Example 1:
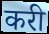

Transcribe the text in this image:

करी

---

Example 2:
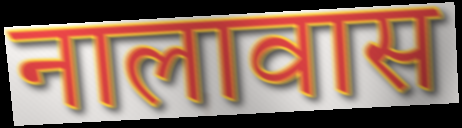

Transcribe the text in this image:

नालावास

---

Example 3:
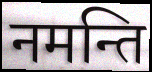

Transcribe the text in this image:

नमन्ति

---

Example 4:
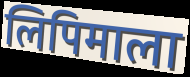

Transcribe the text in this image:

लिपिमाला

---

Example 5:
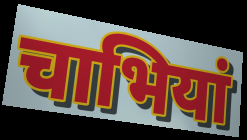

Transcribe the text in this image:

चाभियां